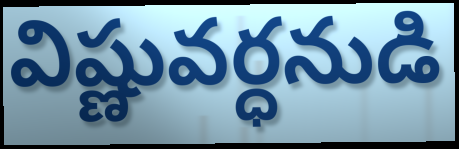
విష్ణువర్ధనుడి